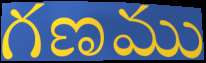
గణము